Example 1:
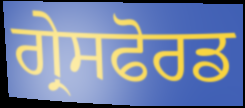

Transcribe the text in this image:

ਗ੍ਰੇਸਫੋਰਡ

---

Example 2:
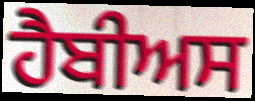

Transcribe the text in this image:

ਹੈਬੀਅਸ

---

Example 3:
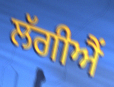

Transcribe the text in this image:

ਲੱਗੀਐਂ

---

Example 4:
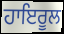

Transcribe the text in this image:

ਹਾਇਰੂਲ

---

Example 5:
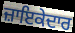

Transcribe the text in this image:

ਜ਼ਾਇਕੇਦਾਰ